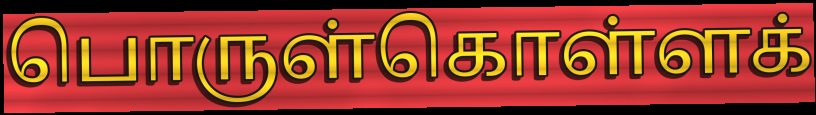
பொருள்கொள்ளக்